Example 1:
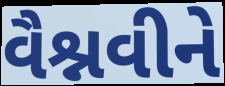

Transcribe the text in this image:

વૈશ્નવીને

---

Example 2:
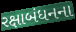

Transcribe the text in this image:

રક્ષાબંધનના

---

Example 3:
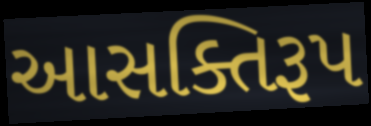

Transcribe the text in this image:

આસક્તિરૂપ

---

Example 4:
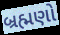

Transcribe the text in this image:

બ્રહ્મણો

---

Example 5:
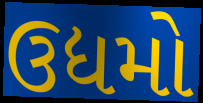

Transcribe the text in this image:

ઉદ્યમો